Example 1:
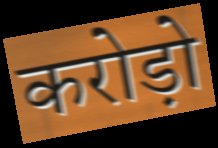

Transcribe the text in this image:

करोड़ो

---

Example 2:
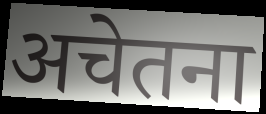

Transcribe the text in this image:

अचेतना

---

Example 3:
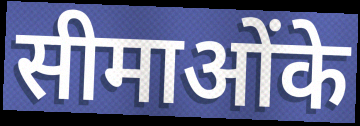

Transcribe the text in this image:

सीमाओंके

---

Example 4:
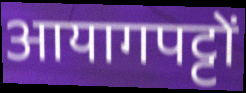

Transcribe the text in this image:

आयागपट्टों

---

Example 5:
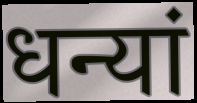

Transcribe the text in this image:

धन्यां